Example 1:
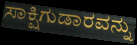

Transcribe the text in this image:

ಸಾಕ್ಷಿಗುಡಾರವನ್ನು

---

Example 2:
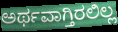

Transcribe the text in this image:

ಅರ್ಥವಾಗ್ತಿರಲಿಲ್ಲ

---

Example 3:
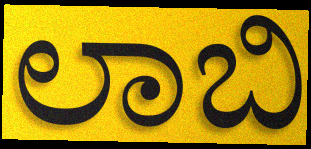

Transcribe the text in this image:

ಲಾಬಿ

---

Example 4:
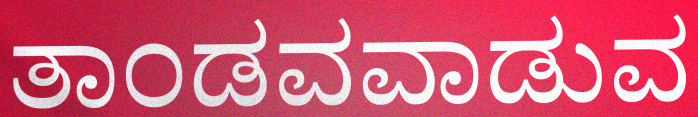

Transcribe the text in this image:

ತಾಂಡವವಾಡುವ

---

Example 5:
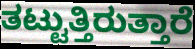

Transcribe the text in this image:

ತಟ್ಟುತ್ತಿರುತ್ತಾರೆ